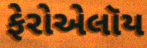
ફેરોએલૉય